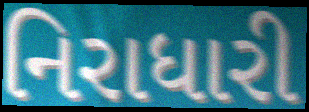
નિરાધારી